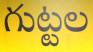
గుట్టల